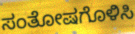
ಸಂತೋಷಗೊಳಿಸಿ